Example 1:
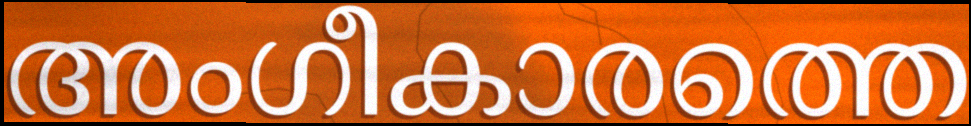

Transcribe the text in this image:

അംഗീകാരത്തെ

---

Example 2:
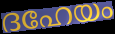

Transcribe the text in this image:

ദഹേയം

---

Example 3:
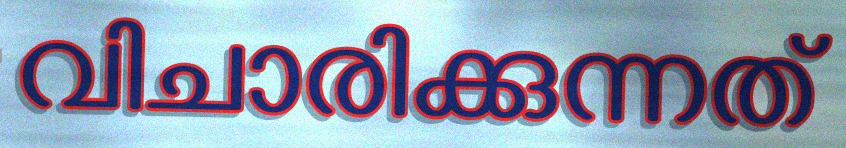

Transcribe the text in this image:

വിചാരിക്കുന്നത്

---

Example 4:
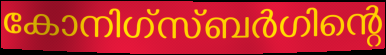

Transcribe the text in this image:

കോനിഗ്സ്ബർഗിന്റെ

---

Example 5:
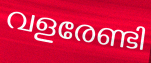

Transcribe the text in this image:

വളരേണ്ടി